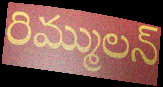
రిమ్ములన్